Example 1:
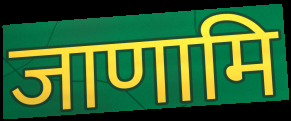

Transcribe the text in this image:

जाणामि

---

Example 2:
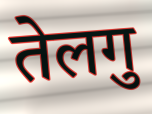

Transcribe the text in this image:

तेलगु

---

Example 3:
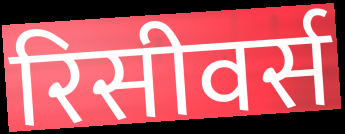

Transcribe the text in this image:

रिसीवर्स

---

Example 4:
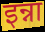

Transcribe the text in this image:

इन्ना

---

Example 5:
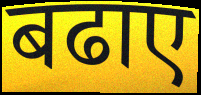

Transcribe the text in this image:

बढाए